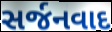
સર્જનવાદ